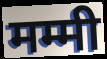
मम्मी